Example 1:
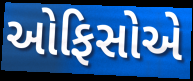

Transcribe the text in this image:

ઓફિસોએ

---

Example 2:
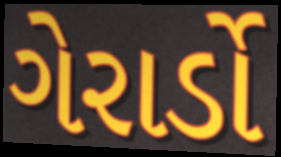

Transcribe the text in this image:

ગેરાર્ડો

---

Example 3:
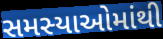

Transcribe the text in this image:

સમસ્યાઓમાંથી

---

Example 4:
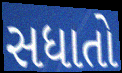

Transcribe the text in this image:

સધાતો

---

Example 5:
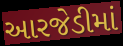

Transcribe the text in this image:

આરજેડીમાં